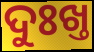
ଦୁଃଖ୍ତ